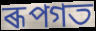
ৰূপগত